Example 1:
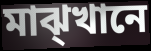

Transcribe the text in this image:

মাঝ্খানে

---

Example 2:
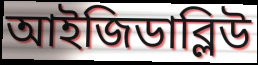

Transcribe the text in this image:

আইজিডাব্লিউ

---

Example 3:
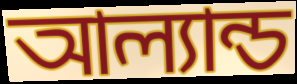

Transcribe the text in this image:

আল্যান্ড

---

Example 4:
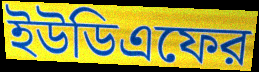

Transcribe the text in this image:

ইউডিএফের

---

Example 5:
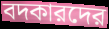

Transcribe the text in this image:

বদকারদের